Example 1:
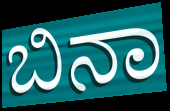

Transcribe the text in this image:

ಬಿನಾ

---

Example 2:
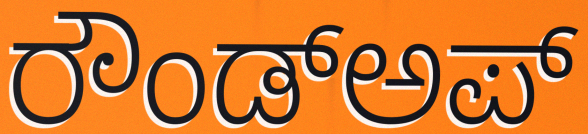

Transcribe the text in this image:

ರೌಂಡ್ಅಪ್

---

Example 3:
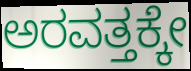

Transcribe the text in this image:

ಅರವತ್ತಕ್ಕೇ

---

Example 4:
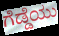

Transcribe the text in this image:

ಗೆಡ್ಡೆಯು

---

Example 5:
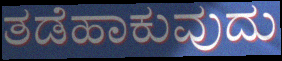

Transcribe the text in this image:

ತಡೆಹಾಕುವುದು